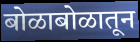
बोळाबोळातून